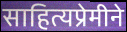
साहित्यप्रेमीने